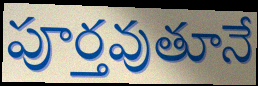
పూర్తవుతూనే